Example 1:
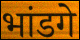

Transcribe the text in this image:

भांडगे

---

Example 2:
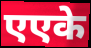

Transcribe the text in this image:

एएके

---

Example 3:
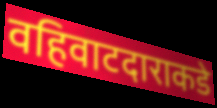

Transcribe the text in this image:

वहिवाटदाराकडे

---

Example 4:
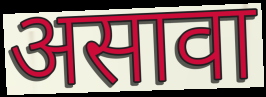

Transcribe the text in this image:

असावा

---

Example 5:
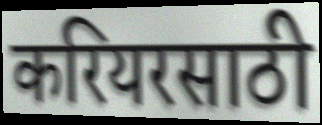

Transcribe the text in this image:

करियरसाठी